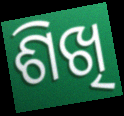
ଶିଖି